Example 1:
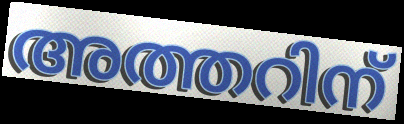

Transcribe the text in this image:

അത്തറിന്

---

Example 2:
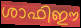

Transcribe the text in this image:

ശാഫിഈ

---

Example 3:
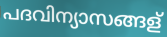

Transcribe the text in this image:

പദവിന്യാസങ്ങള്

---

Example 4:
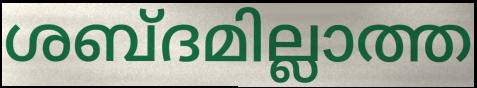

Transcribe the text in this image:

ശബ്ദമില്ലാത്ത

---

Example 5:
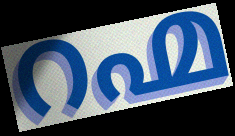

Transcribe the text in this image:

റഹ്മ